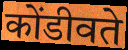
कोंडीवते